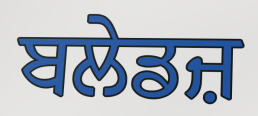
ਬਲੇਡਜ਼